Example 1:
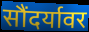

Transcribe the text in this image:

सौंदर्यावर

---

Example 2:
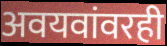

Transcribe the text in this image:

अवयवांवरही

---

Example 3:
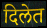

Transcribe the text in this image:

दिलेत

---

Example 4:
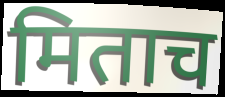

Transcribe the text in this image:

मिताच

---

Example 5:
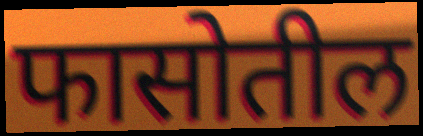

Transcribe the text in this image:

फासोतील